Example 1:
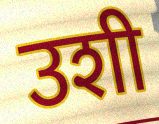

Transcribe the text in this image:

उशी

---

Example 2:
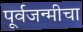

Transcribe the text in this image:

पूर्वजन्मीचा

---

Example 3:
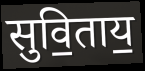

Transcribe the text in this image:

सुवि॒ताय॒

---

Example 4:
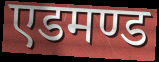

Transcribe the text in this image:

एडमण्ड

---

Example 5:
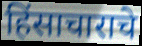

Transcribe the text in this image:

हिंसाचाराचे